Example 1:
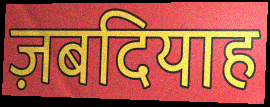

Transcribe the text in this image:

ज़बदियाह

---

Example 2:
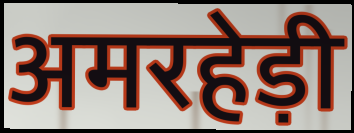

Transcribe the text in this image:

अमरहेड़ी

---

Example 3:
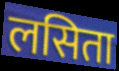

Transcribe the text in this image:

लसिता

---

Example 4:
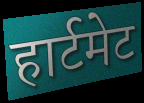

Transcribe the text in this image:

हार्टमेट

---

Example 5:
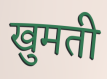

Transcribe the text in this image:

खुमती